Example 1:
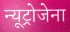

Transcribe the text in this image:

न्यूट्रोजेना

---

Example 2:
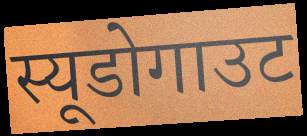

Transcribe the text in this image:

स्यूडोगाउट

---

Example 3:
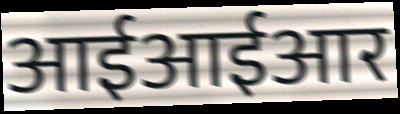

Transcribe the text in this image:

आईआईआर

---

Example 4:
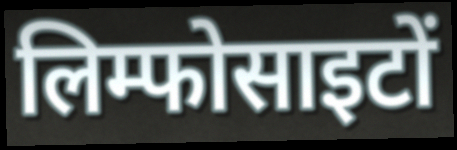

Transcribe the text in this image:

लिम्फोसाइटों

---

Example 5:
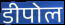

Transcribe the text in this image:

डीपोल